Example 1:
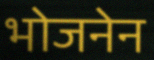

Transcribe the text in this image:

भोजनेन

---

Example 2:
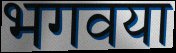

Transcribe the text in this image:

भगवया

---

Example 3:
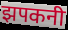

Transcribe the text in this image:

झपकनी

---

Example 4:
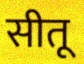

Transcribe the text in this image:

सीतू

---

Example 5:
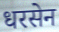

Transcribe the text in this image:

धरसेन